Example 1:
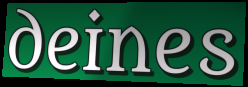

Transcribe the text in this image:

deines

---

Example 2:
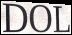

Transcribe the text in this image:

DOL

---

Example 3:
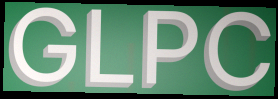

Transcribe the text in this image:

GLPC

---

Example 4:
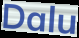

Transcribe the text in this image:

Dalu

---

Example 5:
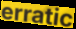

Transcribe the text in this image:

erratic